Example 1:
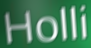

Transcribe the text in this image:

Holli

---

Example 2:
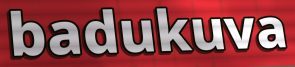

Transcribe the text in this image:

badukuva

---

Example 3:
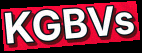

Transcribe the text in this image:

KGBVs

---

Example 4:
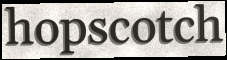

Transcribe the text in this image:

hopscotch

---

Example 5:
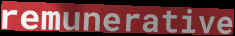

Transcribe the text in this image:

remunerative